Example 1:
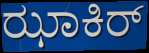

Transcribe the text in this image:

ಝಾಕಿರ್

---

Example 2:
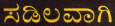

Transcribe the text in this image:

ಸಡಿಲವಾಗಿ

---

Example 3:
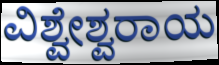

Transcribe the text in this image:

ವಿಶ್ವೇಶ್ವರಾಯ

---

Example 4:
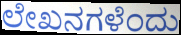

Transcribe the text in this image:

ಲೇಖನಗಳೆಂದು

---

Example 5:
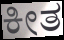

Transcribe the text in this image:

ಕೀತ